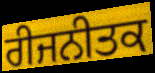
ਰੀਜਨੀਤਕ